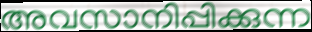
അവസാനിപ്പിക്കുന്ന